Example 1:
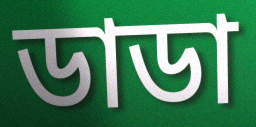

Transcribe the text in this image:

ডাডা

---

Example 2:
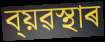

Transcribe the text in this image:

ব্য়ৱস্থাৰ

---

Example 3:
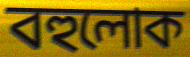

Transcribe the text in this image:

বহুলোক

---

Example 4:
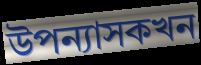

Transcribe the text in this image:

উপন্যাসকখন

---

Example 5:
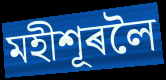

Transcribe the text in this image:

মহীশূৰলৈ